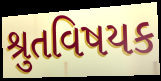
શ્રુતવિષયક